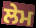
ਲੇਮ